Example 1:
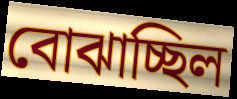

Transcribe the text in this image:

বোঝাচ্ছিল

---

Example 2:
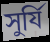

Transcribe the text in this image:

সুর্যি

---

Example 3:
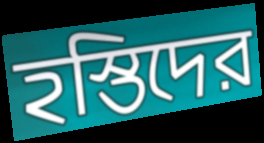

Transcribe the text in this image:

হস্তিদের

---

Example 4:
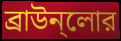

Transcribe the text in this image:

ব্রাউন্লোর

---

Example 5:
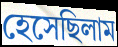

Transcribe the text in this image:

হেসেছিলাম